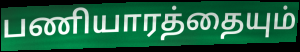
பணியாரத்தையும்